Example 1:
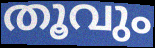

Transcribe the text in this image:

തൂവും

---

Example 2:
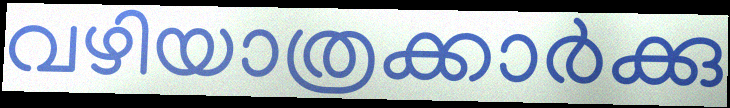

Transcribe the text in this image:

വഴിയാത്രക്കാർക്കു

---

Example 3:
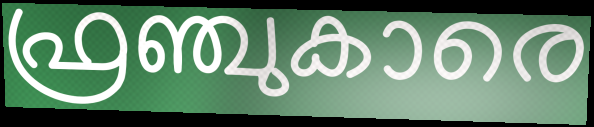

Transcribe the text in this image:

ഫ്രഞ്ചുകാരെ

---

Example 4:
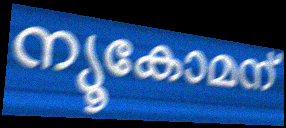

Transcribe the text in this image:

ന്യൂകോമന്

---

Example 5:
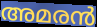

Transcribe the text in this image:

അമരൻ